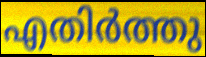
എതിർത്തു